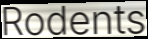
Rodents